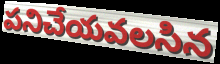
పనిచేయవలసిన